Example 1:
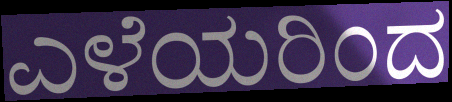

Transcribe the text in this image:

ಎಳೆಯರಿಂದ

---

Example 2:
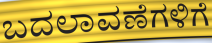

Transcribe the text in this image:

ಬದಲಾವಣೆಗಳಿಗೆ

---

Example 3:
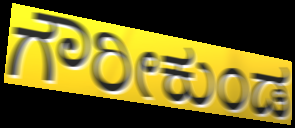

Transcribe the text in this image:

ಗೌರೀಕುಂಡ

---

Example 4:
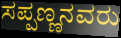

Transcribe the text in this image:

ಸಪ್ಪಣ್ಣನವರು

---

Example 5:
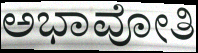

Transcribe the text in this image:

ಅಭಾವೋತಿ